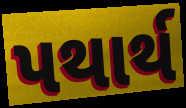
પથાર્થ